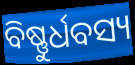
ବିଷ୍ଣୁର୍ଧବସ୍ୟ